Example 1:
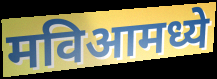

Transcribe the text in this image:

मविआमध्ये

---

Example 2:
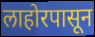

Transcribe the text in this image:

लाहोरपासून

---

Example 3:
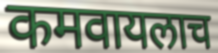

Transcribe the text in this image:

कमवायलाच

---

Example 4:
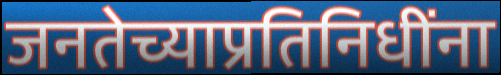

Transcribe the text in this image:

जनतेच्याप्रतिनिधींना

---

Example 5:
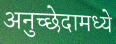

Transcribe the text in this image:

अनुच्छेदामध्ये